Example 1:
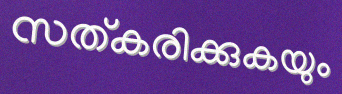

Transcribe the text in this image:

സത്കരിക്കുകയും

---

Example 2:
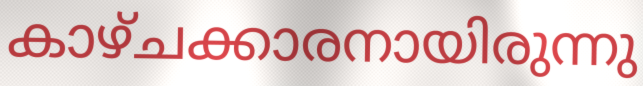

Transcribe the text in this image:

കാഴ്ചക്കാരനായിരുന്നു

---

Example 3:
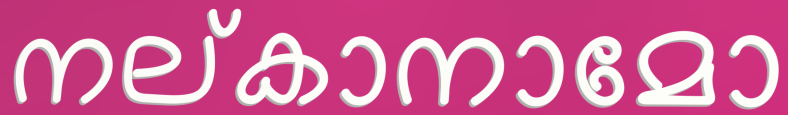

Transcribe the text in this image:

നല്കാനാമോ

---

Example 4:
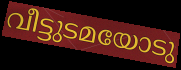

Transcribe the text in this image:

വീട്ടുടമയോടു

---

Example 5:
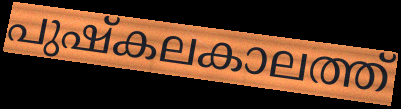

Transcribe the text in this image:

പുഷ്കലകാലത്ത്